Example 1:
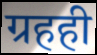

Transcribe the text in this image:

ग्रहही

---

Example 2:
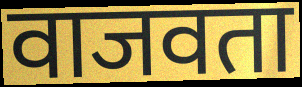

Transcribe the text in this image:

वाजवता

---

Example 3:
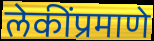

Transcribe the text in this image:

लेकींप्रमाणे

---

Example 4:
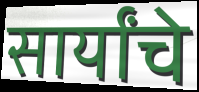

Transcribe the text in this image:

सार्यांचे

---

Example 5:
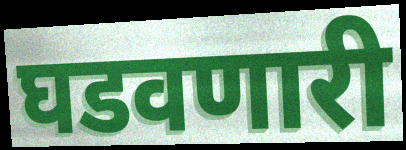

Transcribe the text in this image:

घडवणारी